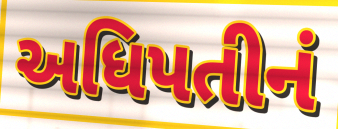
અધિપતીનં